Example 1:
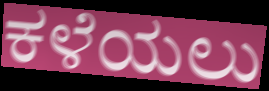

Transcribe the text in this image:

ಕಳೆಯಲು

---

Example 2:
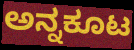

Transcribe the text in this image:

ಅನ್ನಕೂಟ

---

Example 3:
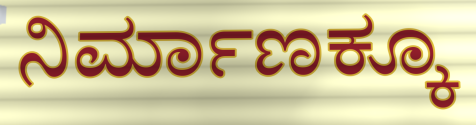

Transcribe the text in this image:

ನಿರ್ಮಾಣಕ್ಕೂ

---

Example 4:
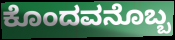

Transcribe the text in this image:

ಕೊಂದವನೊಬ್ಬ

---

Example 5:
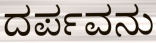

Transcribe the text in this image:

ದರ್ಪವನು